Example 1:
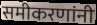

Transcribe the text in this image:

समीकरणांनी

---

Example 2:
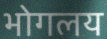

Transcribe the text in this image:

भोगलय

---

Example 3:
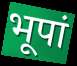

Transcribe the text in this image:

भूपां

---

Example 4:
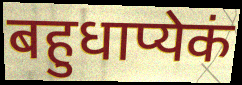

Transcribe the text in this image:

बहुधाप्येकं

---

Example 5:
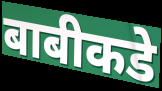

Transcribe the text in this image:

बाबीकडे